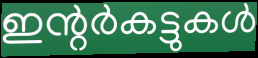
ഇന്റർകട്ടുകൾ